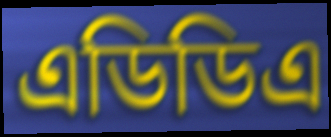
এডিডিএ